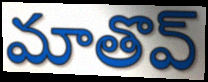
మాతొవ్